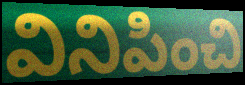
వినిపించి